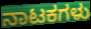
ನಾಟಕಗಳು